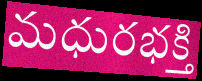
మధురభక్తి